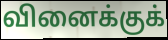
வினைக்குக்